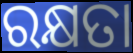
ରକ୍ଷତା